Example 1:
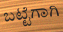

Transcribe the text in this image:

ಬಟ್ಟೆಗಾಗಿ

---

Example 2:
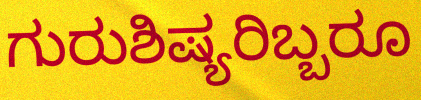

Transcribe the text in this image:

ಗುರುಶಿಷ್ಯರಿಬ್ಬರೂ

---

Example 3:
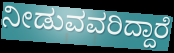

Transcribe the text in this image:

ನೀಡುವವರಿದ್ದಾರೆ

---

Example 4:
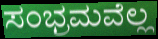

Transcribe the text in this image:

ಸಂಭ್ರಮವೆಲ್ಲ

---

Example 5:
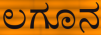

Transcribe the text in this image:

ಲಗೂನ